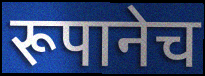
रूपानेच